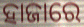
ହାଜାରେ